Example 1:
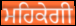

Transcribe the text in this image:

ਮਹਿਕੇਗੀ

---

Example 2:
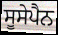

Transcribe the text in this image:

ਸੂਸੇਪੈਨ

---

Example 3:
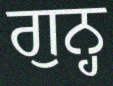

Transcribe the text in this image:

ਗੁਨ੍ਹ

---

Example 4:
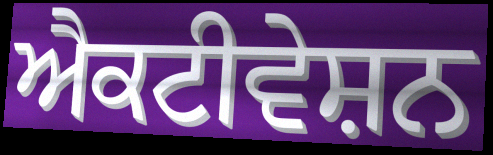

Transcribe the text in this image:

ਐਕਟੀਵੇਸ਼ਨ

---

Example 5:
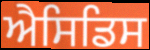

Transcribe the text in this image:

ਐਸਿਡਿਸ